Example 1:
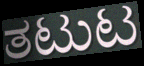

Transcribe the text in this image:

ತಟುಟ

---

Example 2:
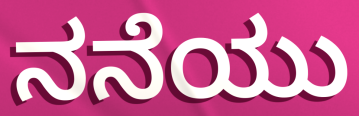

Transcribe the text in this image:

ನನೆಯು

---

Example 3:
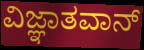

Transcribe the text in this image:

ವಿಜ್ಞಾತವಾನ್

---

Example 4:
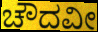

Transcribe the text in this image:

ಚೌದವೀ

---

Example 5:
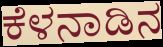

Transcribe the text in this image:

ಕೆಳನಾಡಿನ